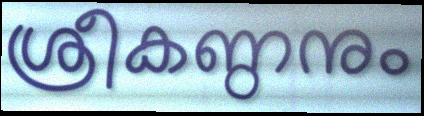
ശ്രീകണ്ഠനും